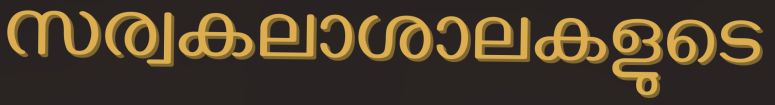
സര്വകലാശാലകളുടെ